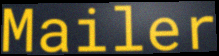
Mailer